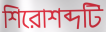
শিরোশব্দটি